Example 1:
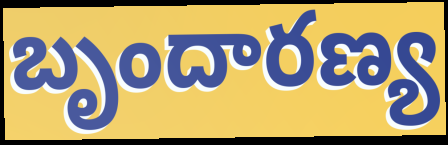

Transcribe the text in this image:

బృందారణ్య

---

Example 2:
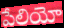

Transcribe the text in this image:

పేలియో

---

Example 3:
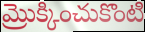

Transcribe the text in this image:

మ్రొక్కించుకొంటి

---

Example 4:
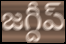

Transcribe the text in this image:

జగ్దీప్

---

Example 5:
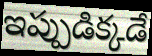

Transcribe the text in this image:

ఇప్పుడిక్కడే